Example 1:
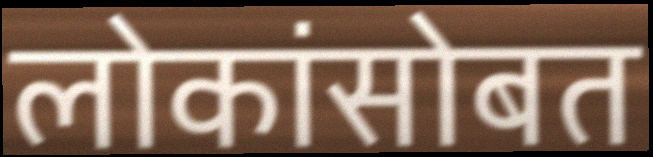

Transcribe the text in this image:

लोकांसोबत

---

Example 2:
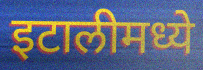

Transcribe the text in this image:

इटालीमध्ये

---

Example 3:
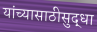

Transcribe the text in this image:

यांच्यासाठीसुद्धा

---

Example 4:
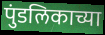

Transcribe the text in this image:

पुंडलिकाच्या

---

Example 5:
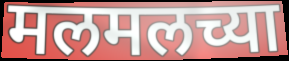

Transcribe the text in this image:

मलमलच्या